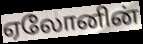
ஏலோனின்